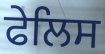
ਫੇਲਿਸ